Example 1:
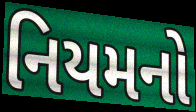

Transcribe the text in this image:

નિયમનો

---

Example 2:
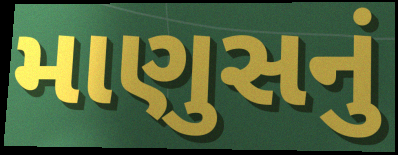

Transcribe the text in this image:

માણુસનું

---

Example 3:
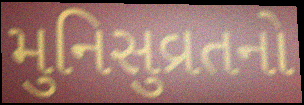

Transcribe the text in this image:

મુનિસુવ્રતનો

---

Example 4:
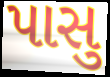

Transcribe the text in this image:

પાસુ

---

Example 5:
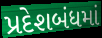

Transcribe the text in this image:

પ્રદેશબંધમાં